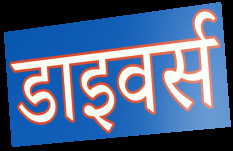
डाइवर्स